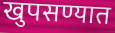
खुपसण्यात